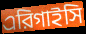
এরিগাইসি